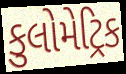
કુલોમેટ્રિક